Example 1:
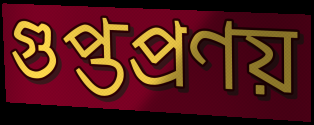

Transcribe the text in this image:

গুপ্তপ্রণয়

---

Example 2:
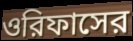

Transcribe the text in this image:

ওরিফাসের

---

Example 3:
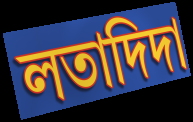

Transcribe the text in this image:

লতাদিদা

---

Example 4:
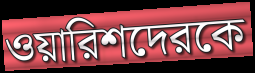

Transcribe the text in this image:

ওয়ারিশদেরকে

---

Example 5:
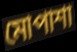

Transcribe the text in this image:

মোপাশা